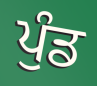
ਪੁੰਡ